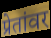
प्रेतांवर